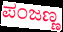
ಪಂಜಣ್ಣ